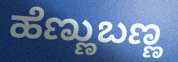
ಹೆಣ್ಣುಬಣ್ಣ